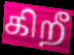
கிறீ